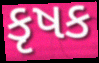
કૃષક